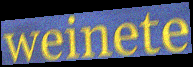
weinete